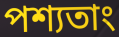
পশ্যতাং